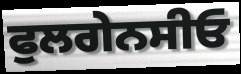
ਫੁਲਗੇਨਸੀਓ